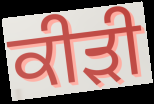
ਕੀੜੀ